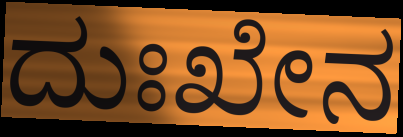
ದುಃಖೇನ